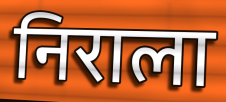
निराला